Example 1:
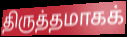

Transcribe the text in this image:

திருத்தமாகக்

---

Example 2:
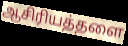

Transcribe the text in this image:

ஆசிரியத்தளை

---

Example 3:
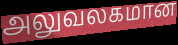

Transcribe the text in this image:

அலுவலகமான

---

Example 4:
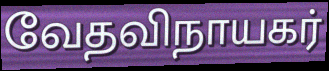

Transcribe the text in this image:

வேதவிநாயகர்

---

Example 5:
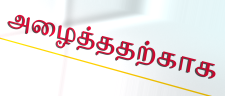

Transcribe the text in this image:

அழைத்ததற்காக